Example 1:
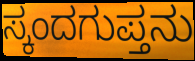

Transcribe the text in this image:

ಸ್ಕಂದಗುಪ್ತನು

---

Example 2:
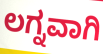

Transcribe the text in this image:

ಲಗ್ನವಾಗಿ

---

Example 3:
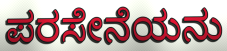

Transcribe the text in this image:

ಪರಸೇನೆಯನು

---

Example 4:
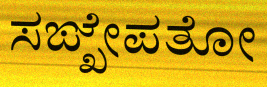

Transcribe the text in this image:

ಸಙ್ಖೇಪತೋ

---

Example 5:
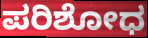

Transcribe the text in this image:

ಪರಿಶೋಧ